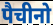
पैचीनो